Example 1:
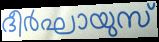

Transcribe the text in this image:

ദീർഘായുസ്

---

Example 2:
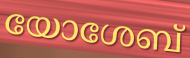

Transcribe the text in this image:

യോശേബ്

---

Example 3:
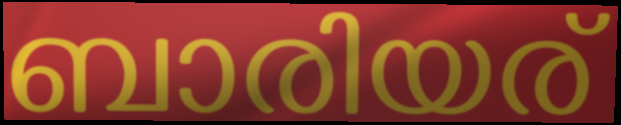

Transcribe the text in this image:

ബാരിയര്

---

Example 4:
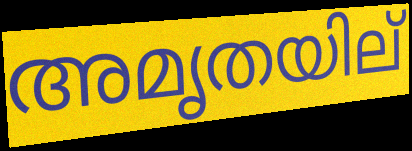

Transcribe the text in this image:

അമൃതയില്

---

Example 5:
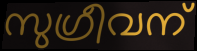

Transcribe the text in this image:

സുഗ്രീവന്